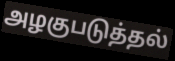
அழகுபடுத்தல்